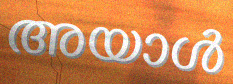
അയാൾ